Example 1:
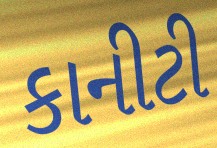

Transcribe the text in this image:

કાનીટી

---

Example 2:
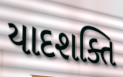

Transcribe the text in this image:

યાદશક્તિ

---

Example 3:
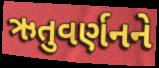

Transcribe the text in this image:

ઋતુવર્ણનને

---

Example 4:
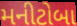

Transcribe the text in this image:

મનીટોબા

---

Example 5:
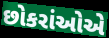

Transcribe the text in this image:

છોકરાંઓએ